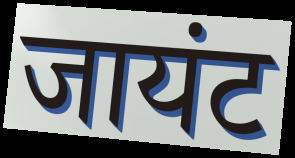
जायंट